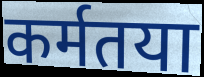
कर्मतया